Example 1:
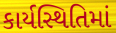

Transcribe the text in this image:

કાર્યસ્થિતિમાં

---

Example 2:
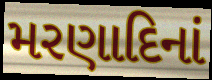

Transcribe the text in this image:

મરણાદિનાં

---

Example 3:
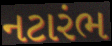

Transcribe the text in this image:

નટારંભ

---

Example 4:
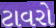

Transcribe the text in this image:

ટાવરો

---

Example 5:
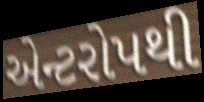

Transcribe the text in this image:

એન્ટરોપથી